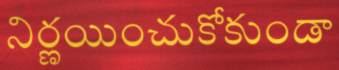
నిర్ణయించుకోకుండా